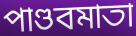
পাণ্ডবমাতা